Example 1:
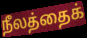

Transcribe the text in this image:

நீலத்தைக்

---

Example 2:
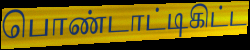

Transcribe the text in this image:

பொண்டாட்டிகிட்ட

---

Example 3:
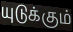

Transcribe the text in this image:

யுடுக்கும்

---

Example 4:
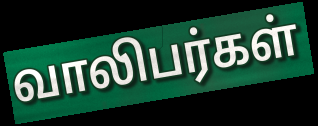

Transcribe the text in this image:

வாலிபர்கள்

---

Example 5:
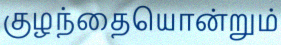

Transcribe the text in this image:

குழந்தையொன்றும்